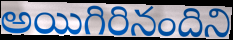
అయిగిరినందిని